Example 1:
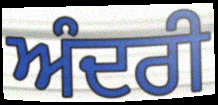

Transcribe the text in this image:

ਅੰਦਰੀ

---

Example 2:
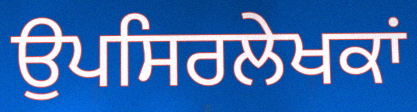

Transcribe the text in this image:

ਉਪਸਿਰਲੇਖਕਾਂ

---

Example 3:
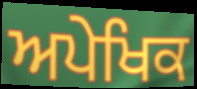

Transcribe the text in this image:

ਅਪੇਖਿਕ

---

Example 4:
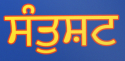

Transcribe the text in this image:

ਸੰਤੁਸ਼ਟ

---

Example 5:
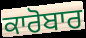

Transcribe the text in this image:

ਕਾਰੋਬਾਰ